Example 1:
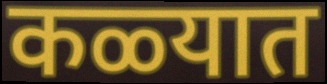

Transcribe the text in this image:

कळ्यात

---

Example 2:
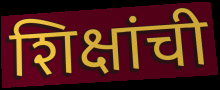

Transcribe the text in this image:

शिक्षांची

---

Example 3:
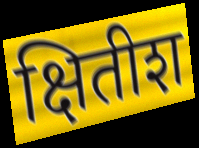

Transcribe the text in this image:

क्षितीश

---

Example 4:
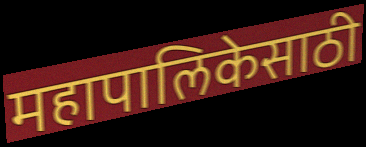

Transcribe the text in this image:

महापालिकेसाठी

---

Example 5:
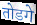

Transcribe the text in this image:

तोडगे